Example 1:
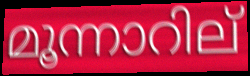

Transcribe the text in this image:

മൂന്നാറില്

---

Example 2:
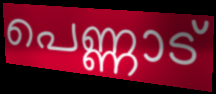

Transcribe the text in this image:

പെണ്ണാട്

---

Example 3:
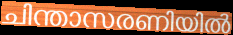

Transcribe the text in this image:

ചിന്താസരണിയിൽ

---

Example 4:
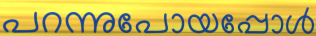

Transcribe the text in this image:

പറന്നുപോയപ്പോൾ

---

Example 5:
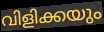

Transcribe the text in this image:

വിളിക്കയും